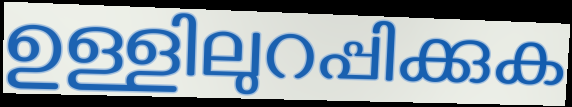
ഉള്ളിലുറപ്പിക്കുക